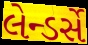
લેન્ડર્સે